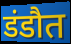
डंडौत